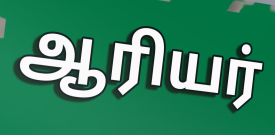
ஆரியர்